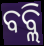
ବବ୍ଲି